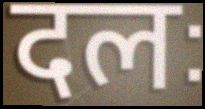
दलः